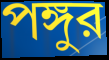
পঙ্গুর